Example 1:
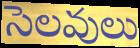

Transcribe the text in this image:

సెలవులు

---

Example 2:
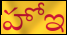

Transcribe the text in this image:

హోఇ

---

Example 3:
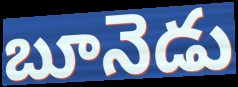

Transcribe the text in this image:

బూనెడు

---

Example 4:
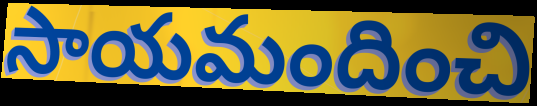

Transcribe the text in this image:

సాయమందించి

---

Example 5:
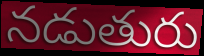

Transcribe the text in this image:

నడుతురు